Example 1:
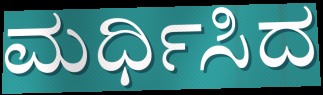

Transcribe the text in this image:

ಮರ್ಧಿಸಿದ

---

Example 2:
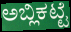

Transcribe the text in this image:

ಅಬ್ಲಿಕಟ್ಟೆ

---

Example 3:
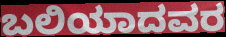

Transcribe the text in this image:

ಬಲಿಯಾದವರ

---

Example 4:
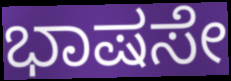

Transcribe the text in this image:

ಭಾಷಸೇ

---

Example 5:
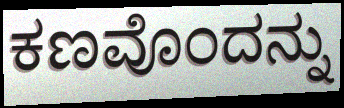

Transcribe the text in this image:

ಕಣವೊಂದನ್ನು